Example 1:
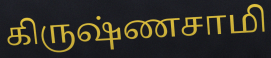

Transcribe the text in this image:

கிருஷ்ணசாமி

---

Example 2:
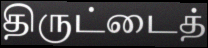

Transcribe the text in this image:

திருட்டைத்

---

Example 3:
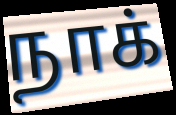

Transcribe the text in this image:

நாக்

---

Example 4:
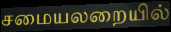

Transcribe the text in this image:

சமையலறையில்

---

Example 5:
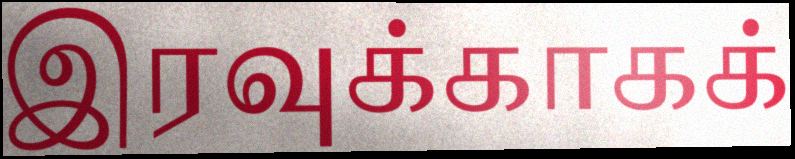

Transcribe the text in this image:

இரவுக்காகக்